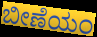
ಬೀಣೆಯಂ